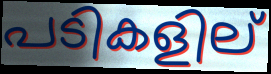
പടികളില്